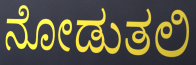
ನೋಡುತಲಿ